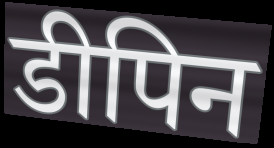
डीपिन